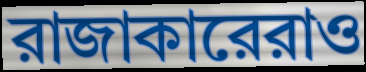
রাজাকারেরাও